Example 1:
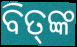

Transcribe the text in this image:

ବିତ୍‌ଙ୍କ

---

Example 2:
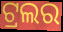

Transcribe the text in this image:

ଟ୍ରଲର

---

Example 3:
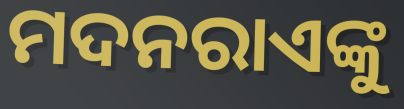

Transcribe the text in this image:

ମଦନରାଏଙ୍କୁ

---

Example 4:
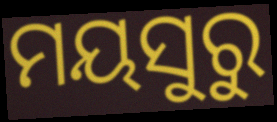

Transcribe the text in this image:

ମୟସୁରୁ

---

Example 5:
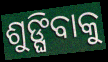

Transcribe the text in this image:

ଶୁଙ୍ଘିବାକୁ